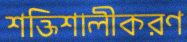
শক্তিশালীকরণ